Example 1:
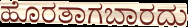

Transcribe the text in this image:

ಹೊರತಾಗಬಾರದು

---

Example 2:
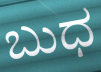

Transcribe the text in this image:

ಬುಧ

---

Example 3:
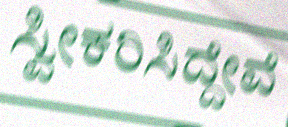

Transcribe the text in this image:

ಸ್ವೀಕರಿಸಿದ್ದೇವೆ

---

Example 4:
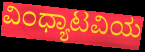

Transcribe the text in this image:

ವಿಂಧ್ಯಾಟವಿಯ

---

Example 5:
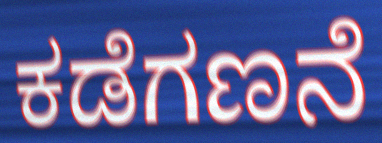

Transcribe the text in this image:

ಕಡೆಗಣನೆ